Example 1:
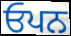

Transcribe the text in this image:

ਓਪਨ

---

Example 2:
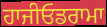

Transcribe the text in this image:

ਹਾਜੀਓਡਰਾਮਾ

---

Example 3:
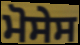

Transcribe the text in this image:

ਮੋਸੇਸ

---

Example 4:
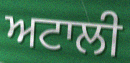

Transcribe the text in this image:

ਅਟਾਲੀ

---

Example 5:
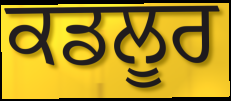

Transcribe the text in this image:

ਕਡਲੂਰ